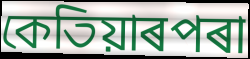
কেতিয়াৰপৰা